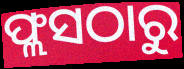
ଫ୍ଲସଠାରୁ